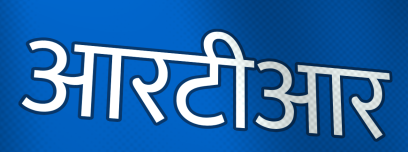
आरटीआर